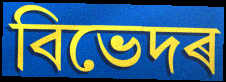
বিভেদৰ